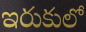
ఇరుకులో